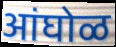
आंघोळ